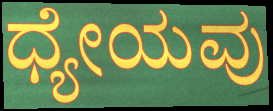
ಧ್ಯೇಯವು